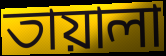
তায়ালা